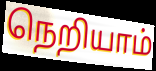
நெறியாம்